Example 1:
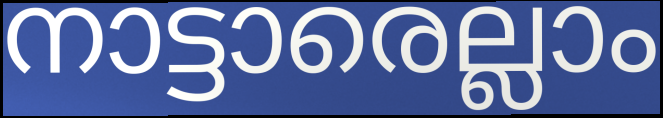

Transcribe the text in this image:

നാട്ടാരെല്ലാം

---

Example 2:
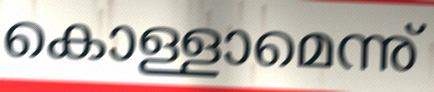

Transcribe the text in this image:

കൊള്ളാമെന്നു്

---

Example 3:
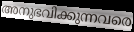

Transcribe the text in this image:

അനുഭവിക്കുന്നവരെ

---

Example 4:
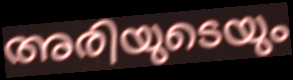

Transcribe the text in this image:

അരിയുടെയും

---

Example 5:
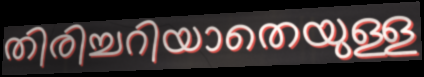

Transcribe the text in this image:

തിരിച്ചറിയാതെയുള്ള